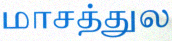
மாசத்துல